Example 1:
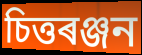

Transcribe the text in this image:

চিত্তৰঞ্জন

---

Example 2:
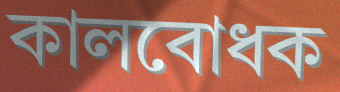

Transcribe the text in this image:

কালবোধক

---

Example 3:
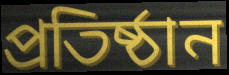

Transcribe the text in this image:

প্ৰতিষ্ঠান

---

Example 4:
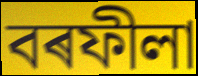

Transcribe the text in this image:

বৰফীলা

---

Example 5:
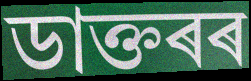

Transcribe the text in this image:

ডাক্তৰৰ